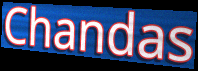
Chandas